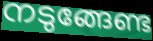
നടുങ്ങേണ്ട